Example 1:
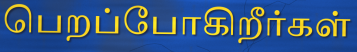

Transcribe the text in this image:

பெறப்போகிறீர்கள்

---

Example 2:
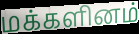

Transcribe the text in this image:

மக்களினம்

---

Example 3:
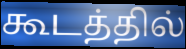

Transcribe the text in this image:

கூடத்தில்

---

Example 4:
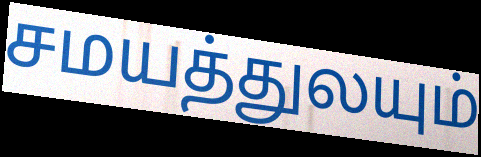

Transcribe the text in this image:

சமயத்துலயும்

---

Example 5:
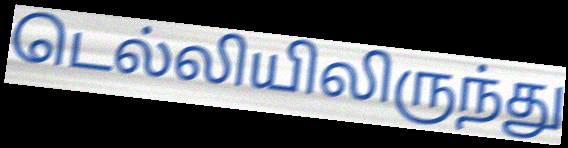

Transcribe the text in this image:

டெல்லியிலிருந்து